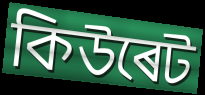
কিউৰেট